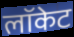
लॉकेट